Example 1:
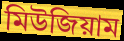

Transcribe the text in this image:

মিউজিয়াম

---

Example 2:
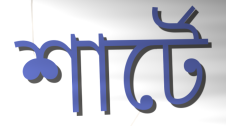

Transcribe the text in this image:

শার্টে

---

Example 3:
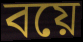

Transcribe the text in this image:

বয়ে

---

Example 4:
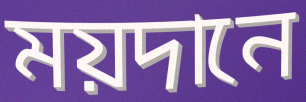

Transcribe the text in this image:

ময়দানে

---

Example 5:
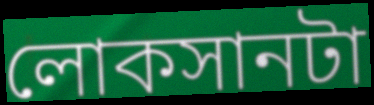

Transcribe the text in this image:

লোকসানটা